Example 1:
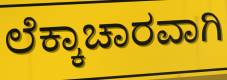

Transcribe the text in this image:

ಲೆಕ್ಕಾಚಾರವಾಗಿ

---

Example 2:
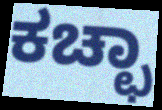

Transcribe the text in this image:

ಕಚ್ಛಾ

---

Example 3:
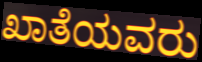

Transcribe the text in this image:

ಖಾತೆಯವರು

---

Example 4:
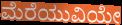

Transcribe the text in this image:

ಮೆರೆಯುವಿಯೇ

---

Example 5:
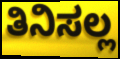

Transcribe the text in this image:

ತಿನಿಸಲ್ಲ